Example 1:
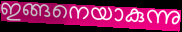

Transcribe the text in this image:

ഇങ്ങനെയാകുന്നു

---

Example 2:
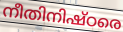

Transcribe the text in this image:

നീതിനിഷ്ഠരെ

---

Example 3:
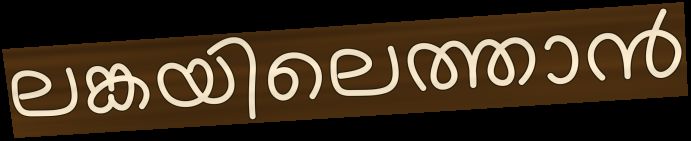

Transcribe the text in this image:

ലങ്കയിലെത്താൻ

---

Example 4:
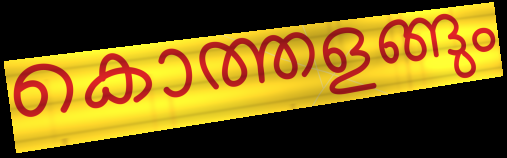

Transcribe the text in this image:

കൊത്തളങ്ങും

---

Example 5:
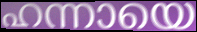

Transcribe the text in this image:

ഹന്നായെ